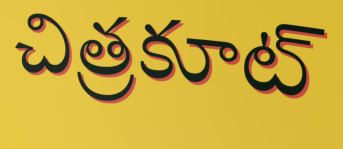
చిత్రకూట్